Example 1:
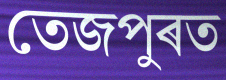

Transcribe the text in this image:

তেজপুৰত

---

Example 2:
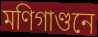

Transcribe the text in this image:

মণিগাণ্ডনে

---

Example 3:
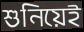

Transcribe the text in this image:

শুনিয়েই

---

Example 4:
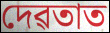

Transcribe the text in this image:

দেৱতাত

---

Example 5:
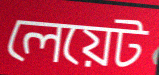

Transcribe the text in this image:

লেয়েট